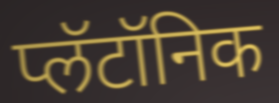
प्लॅटॉनिक